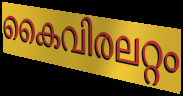
കൈവിരലറ്റം